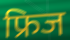
फ्रिज